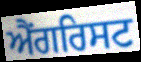
ਐਂਗਰਿਸਟ